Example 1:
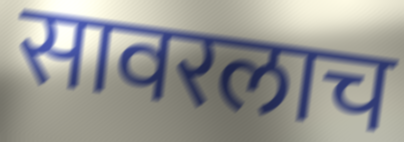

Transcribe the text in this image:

सावरलाच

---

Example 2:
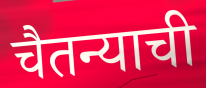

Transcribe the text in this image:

चैतन्याची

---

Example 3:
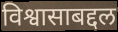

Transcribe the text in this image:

विश्वासाबद्दल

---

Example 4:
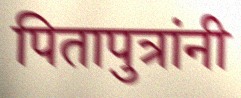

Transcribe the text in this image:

पितापुत्रांनी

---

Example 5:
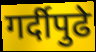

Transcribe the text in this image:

गर्दीपुढे